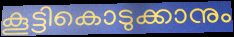
കൂട്ടികൊടുക്കാനും